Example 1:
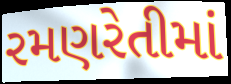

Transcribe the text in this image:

રમણરેતીમાં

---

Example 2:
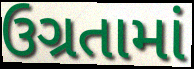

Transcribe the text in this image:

ઉગ્રતામાં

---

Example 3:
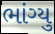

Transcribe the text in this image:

ભાંગ્યુ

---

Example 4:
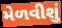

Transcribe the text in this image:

મેળવીશું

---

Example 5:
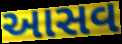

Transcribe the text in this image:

આસવ